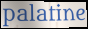
palatine